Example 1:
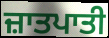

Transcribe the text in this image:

ਜ਼ਾਤਪਾਤੀ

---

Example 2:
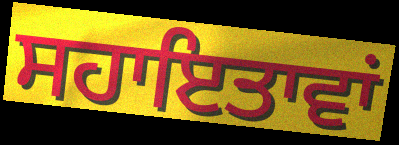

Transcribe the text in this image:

ਸਹਾਇਤਾਵਾਂ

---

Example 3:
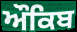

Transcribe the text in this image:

ਔਕਿਬ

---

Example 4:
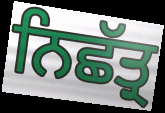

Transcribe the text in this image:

ਨਿਛੱਤ੍ਰ੍ਰ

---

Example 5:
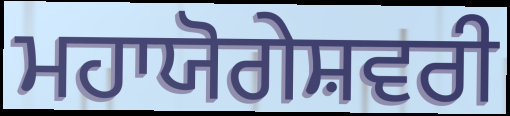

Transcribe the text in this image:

ਮਹਾਯੋਗੇਸ਼ਵਰੀ